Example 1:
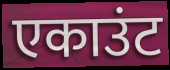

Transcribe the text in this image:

एकाउंट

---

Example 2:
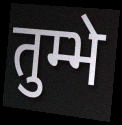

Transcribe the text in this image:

तुम्भे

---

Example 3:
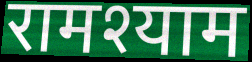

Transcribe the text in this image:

रामश्याम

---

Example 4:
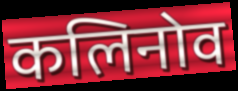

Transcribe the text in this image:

कलिनोव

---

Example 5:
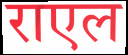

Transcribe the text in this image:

राएल